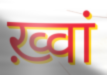
ख़्वां